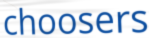
choosers